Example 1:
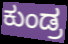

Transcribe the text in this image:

ಕುಂಡ್ರ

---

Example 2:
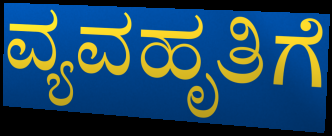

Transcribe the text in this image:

ವ್ಯವಹೃತಿಗೆ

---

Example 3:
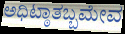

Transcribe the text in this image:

ಅಧಿಟ್ಠಾತಬ್ಬಮೇವ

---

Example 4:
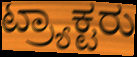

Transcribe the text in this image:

ಟ್ರ್ಯಾಕ್ಟರು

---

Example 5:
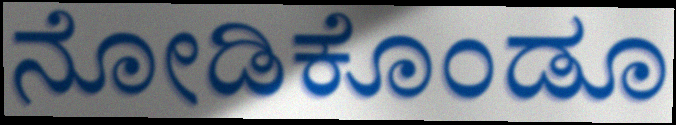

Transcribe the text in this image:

ನೋಡಿಕೊಂಡೂ